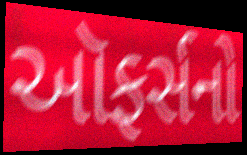
ઑફર્સનો